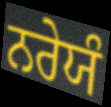
ਨਰੇਯੰ